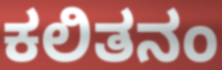
ಕಲಿತನಂ